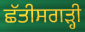
ਛੱਤੀਸਗੜ੍ਹੀ